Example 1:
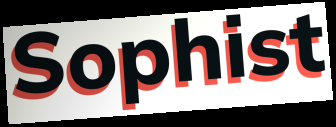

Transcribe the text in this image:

Sophist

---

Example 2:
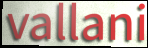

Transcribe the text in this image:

vallani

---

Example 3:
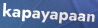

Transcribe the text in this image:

kapayapaan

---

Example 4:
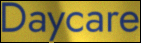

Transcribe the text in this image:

Daycare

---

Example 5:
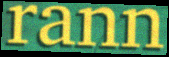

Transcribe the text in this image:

rann